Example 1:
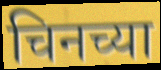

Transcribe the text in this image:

चिनच्या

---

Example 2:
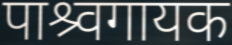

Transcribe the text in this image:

पाश्र्वगायक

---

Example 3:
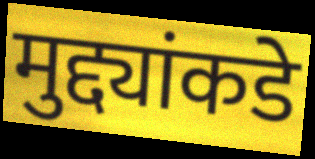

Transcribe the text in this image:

मुद्द्यांकडे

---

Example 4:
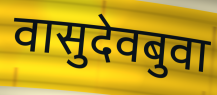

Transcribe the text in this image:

वासुदेवबुवा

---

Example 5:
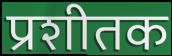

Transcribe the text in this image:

प्रशीतक